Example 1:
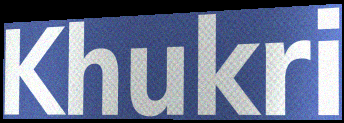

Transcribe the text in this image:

Khukri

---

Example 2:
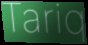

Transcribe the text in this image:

Tariq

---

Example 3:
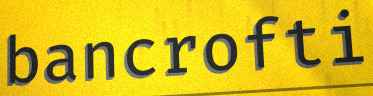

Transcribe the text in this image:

bancrofti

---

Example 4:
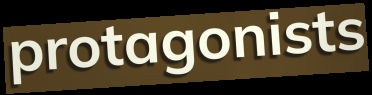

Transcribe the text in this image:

protagonists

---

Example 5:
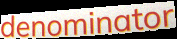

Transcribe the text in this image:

denominator